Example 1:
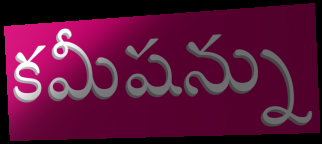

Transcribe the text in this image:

కమీషన్ను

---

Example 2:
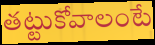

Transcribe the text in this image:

తట్టుకోవాలంటే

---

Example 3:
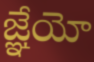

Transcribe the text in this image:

జ్ఞేయో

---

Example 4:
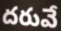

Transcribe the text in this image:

దరువే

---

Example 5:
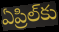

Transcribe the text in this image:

ఏప్రిల్‌కు